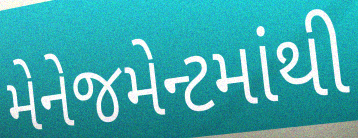
મેનેજમેન્ટમાંથી